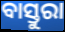
ବାସ୍ତୁରା